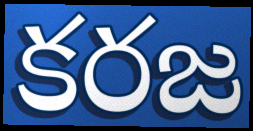
కరజ